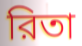
রিতা